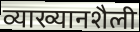
व्याख्यानशैली